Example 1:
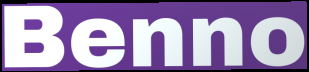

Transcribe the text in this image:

Benno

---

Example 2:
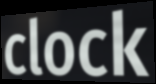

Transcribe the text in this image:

clock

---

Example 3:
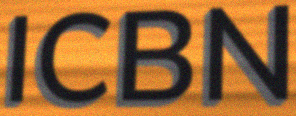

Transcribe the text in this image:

ICBN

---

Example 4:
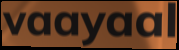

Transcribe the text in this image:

vaayaal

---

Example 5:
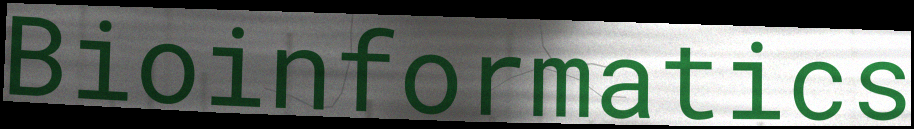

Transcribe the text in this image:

Bioinformatics